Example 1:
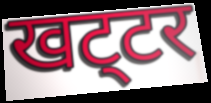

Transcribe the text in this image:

खट्‌टर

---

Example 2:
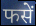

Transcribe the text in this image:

फसें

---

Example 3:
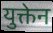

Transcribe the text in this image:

युक्तेन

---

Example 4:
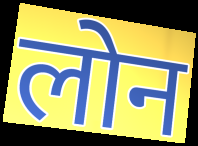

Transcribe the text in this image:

लोन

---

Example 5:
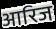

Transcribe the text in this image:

आरिज